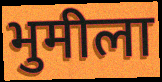
भुमीला